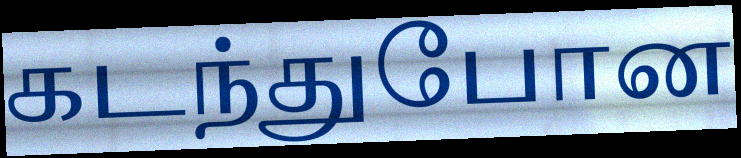
கடந்துபோன